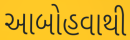
આબોહવાથી